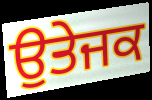
ਉਤੇਜਕ